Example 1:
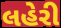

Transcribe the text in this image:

લહેરી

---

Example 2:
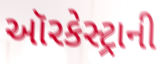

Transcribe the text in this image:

ઑરકેસ્ટ્રાની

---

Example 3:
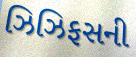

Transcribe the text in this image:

ઝિઝિફસની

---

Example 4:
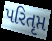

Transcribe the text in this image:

પરિતૃપ્ત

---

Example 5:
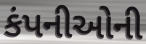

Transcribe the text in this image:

કંપનીઓની